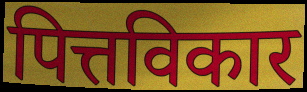
पित्तविकार